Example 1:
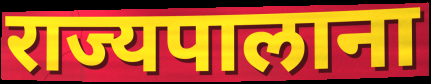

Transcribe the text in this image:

राज्यपालाना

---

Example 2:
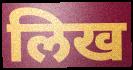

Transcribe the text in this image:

लिख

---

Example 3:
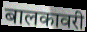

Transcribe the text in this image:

बालकावरी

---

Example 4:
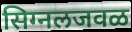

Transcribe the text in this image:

सिग्नलजवळ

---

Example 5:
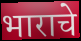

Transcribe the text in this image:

भाराचे